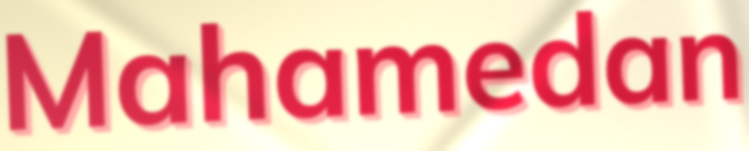
Mahamedan